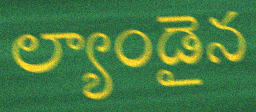
ల్యాండైన